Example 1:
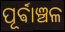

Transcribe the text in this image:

ପୂର୍ଵାଞ୍ଚଳ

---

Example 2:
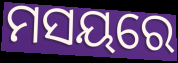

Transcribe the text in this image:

ମସୟରେ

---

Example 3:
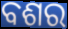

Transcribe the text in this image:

ବଶର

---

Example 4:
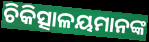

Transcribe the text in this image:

ଚିକିତ୍ସାଳୟମାନଙ୍କ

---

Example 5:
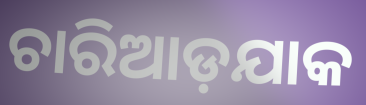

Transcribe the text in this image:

ଚାରିଆଡ଼ଯାକ